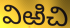
విఱిచి